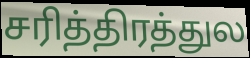
சரித்திரத்துல